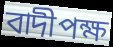
বাদীপক্ষ